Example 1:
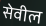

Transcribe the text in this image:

सेवील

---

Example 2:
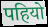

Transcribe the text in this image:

पहियो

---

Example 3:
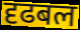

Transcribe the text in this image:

दृढबल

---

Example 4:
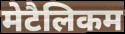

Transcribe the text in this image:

मेटैलिकम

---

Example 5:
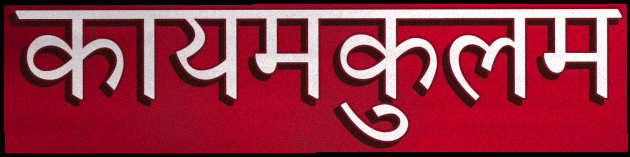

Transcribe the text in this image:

कायमकुलम